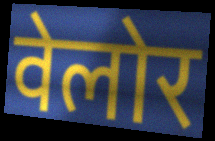
वेलोर